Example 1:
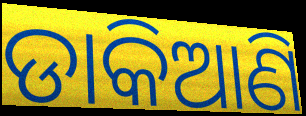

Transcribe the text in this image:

ଡାକିଆଣି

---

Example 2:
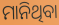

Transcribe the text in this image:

ମାନିଥିବା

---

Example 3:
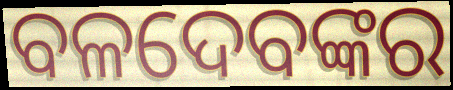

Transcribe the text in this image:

ବଳଦେବଙ୍କର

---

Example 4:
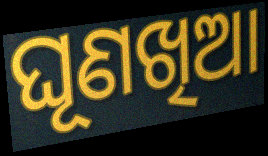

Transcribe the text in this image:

ଘୂଣଖିଆ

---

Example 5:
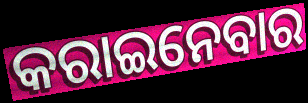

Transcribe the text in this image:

କରାଇନେବାର